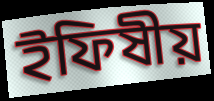
ইফিষীয়